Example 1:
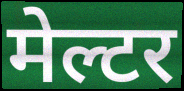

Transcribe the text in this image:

मेल्टर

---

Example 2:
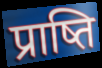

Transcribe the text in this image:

प्राष्ति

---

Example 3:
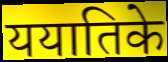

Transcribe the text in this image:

ययातिके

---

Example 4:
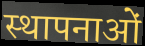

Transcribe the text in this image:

स्थापनाओं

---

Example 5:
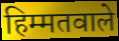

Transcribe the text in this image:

हिम्मतवाले